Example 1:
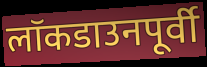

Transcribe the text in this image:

लॉकडाउनपूर्वी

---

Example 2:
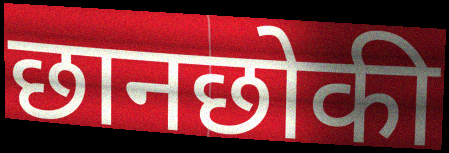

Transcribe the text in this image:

छानछोकी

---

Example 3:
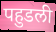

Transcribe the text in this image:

पहुडली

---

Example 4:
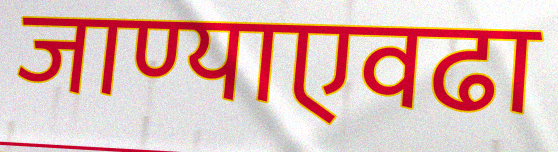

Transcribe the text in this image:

जाण्याएवढा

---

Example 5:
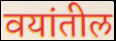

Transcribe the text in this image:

वयांतील